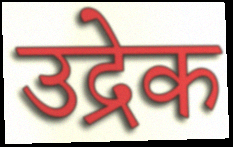
उद्रेक